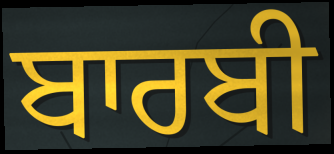
ਬਾਰਬੀ